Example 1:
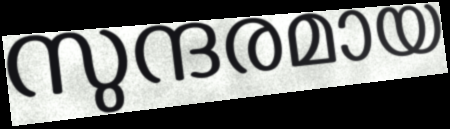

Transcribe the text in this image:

സുന്ദരമായ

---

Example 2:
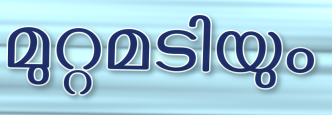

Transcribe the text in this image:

മുറ്റമടിയും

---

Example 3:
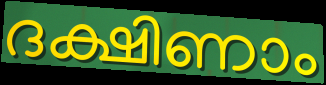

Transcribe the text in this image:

ദക്ഷിണാം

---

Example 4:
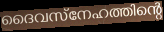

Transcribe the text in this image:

ദൈവസ്‌നേഹത്തിന്റെ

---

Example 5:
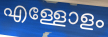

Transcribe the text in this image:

എള്ളോളം